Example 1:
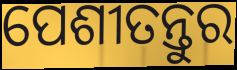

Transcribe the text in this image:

ପେଶୀତନ୍ତୁର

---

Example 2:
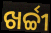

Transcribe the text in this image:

ଖର୍ଚ୍ଚୀ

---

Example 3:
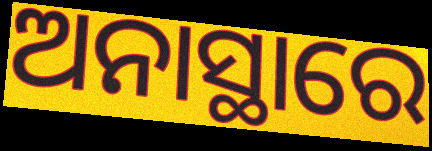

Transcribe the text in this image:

ଅନାସ୍ଥାରେ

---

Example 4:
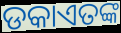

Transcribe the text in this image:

ଡକାଏତଙ୍କ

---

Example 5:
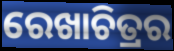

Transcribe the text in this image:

ରେଖାଚିତ୍ରର